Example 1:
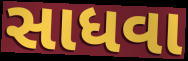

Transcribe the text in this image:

સાધવા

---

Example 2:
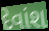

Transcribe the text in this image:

દેવાંશ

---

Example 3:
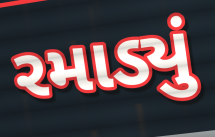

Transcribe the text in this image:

રમાડ્યું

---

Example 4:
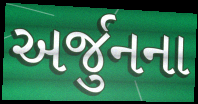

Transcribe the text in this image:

અર્જુનના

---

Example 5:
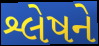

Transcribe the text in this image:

શ્લેષને